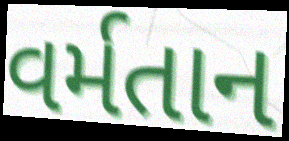
વર્મતાન